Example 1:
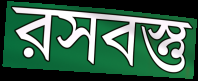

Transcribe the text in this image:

রসবস্তু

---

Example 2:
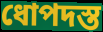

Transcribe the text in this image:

ধোপদস্ত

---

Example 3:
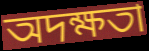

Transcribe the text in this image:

অদক্ষতা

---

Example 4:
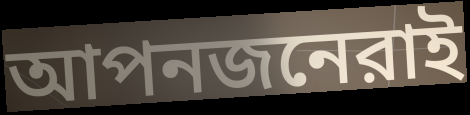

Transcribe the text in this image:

আপনজনেরাই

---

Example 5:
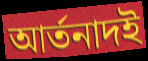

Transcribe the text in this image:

আর্তনাদই